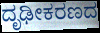
ದೃಢೀಕರಣದ